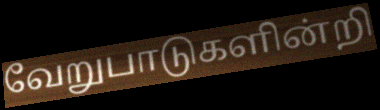
வேறுபாடுகளின்றி